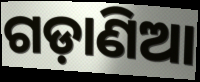
ଗଡ଼ାଣିଆ